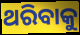
ଥରିବାକୁ